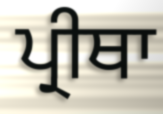
ਪ੍ਰੀਥਾ